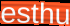
esthu